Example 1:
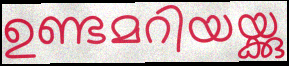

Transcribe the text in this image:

ഉണ്ടമറിയയ്ക്കു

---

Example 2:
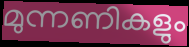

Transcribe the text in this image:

മുന്നണികളും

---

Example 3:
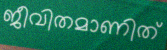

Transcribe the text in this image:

ജീവിതമാണിത്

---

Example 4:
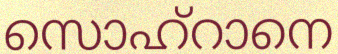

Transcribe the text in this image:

സൊഹ്റാനെ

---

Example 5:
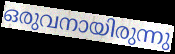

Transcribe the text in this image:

ഒരുവനായിരുന്നു